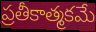
ప్రతీకాత్మకమే